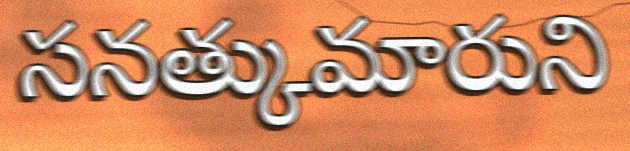
సనత్కుమారుని